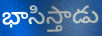
భాసిస్తాడు